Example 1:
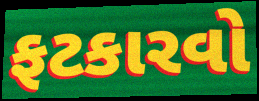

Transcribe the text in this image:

ફટકારવો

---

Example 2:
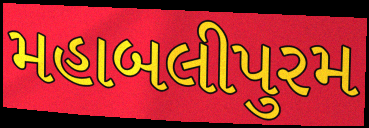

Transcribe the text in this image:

મહાબલીપુરમ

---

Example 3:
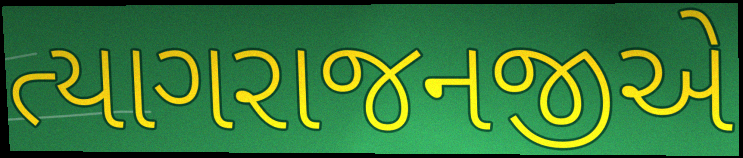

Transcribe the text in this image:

ત્યાગરાજનજીએ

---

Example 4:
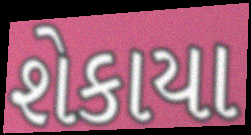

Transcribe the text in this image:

શેકાયા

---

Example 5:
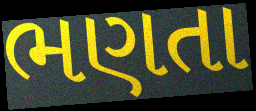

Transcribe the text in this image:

ભણતા